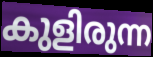
കുളിരുന്ന